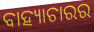
ବାହ୍ୟାଚାରର